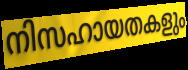
നിസഹായതകളും